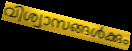
വിശ്വാസങ്ങൾക്കും